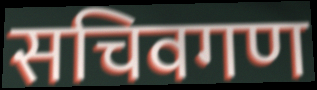
सचिवगण